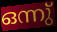
ഒന്നു്